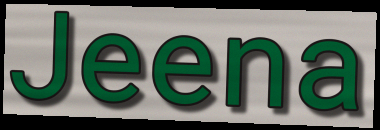
Jeena